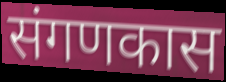
संगणकास